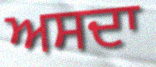
ਅਸਦਾ